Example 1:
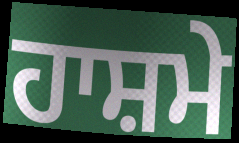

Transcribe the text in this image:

ਹਾਸ਼ਮੇ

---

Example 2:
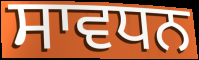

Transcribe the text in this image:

ਸਾਵਧਨ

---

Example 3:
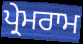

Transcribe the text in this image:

ਪ੍ਰੇਮਰਾਮ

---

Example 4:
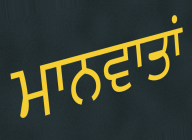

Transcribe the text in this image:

ਮਾਨਵਾਤਾਂ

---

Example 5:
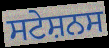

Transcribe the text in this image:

ਸਟੇਸ਼ਨਸ